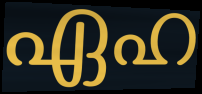
ഏഹ